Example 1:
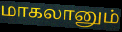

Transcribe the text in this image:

மாகலானும்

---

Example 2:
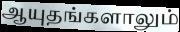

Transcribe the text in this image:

ஆயுதங்களாலும்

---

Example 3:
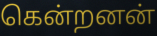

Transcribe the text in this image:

கென்றனன்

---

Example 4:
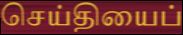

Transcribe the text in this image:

செய்தியைப்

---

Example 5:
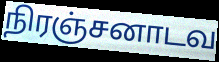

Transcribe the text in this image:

நிரஞ்சனாடவ